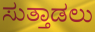
ಸುತ್ತಾಡಲು